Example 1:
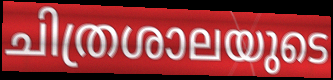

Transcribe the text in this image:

ചിത്രശാലയുടെ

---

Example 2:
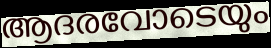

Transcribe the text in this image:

ആദരവോടെയും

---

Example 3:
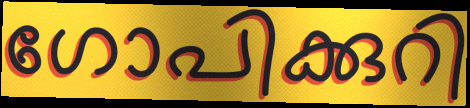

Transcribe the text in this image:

ഗോപിക്കുറി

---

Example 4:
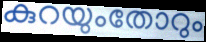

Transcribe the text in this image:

കുറയുംതോറും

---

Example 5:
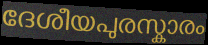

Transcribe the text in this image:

ദേശീയപുരസ്കാരം